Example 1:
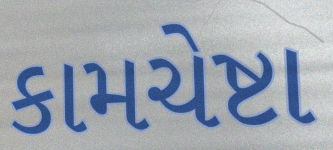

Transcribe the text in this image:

કામચેષ્ટા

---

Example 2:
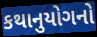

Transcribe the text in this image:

કથાનુયોગનો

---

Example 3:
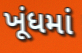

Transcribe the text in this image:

ખૂંધમાં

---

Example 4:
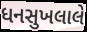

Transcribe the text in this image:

ધનસુખલાલે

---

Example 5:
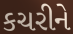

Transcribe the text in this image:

કચરીને